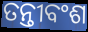
ତନ୍ତୀବଂଶ